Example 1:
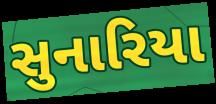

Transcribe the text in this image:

સુનારિયા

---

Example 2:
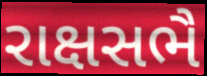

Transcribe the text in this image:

રાક્ષસભૈ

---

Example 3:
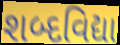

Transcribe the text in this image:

શબ્દવિદ્યા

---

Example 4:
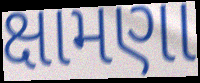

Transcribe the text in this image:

ક્ષામણા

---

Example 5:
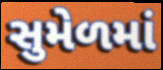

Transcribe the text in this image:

સુમેળમાં